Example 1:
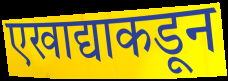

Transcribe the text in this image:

एखाद्याकडून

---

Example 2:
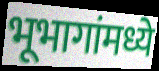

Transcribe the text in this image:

भूभागांमध्ये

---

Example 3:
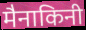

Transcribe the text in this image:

मैनाकिनी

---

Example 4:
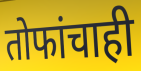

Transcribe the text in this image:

तोफांचाही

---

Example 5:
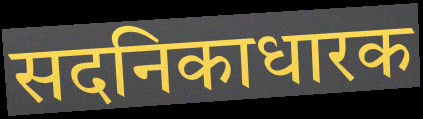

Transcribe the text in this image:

सदनिकाधारक